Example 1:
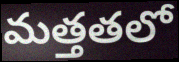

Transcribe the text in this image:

మత్తతలో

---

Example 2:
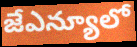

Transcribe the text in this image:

జేఎన్యూలో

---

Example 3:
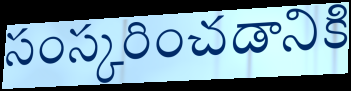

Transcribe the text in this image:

సంస్కరించడానికి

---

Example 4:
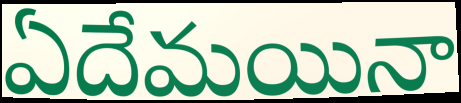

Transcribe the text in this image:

ఏదేమయినా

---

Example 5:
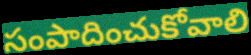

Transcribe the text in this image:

సంపాదించుకోవాలి